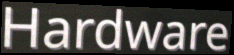
Hardware